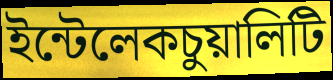
ইন্টেলেকচুয়ালিটি